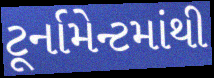
ટૂર્નામેન્ટમાંથી